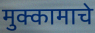
मुक्कामाचे